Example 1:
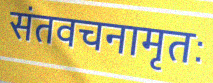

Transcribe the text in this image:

संतवचनामृतः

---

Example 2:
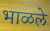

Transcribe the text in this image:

भाळले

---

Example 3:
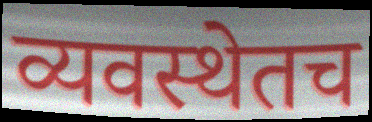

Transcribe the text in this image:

व्यवस्थेतच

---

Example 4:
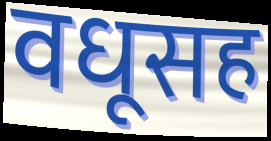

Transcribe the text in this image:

वधूसह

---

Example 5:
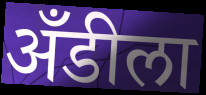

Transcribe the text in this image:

अँडीला